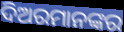
ଦିଅରମାନଙ୍କର